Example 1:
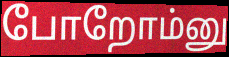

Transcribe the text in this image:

போறோம்னு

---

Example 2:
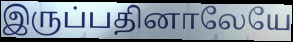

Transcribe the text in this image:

இருப்பதினாலேயே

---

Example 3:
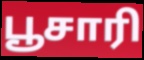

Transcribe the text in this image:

பூசாரி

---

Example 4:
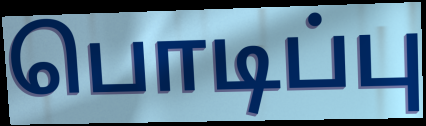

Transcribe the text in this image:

பொடிப்பு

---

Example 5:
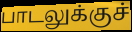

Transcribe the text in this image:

பாடலுக்குச்